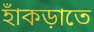
হাঁকড়াতে